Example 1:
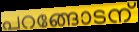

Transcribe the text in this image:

പറങ്ങോടന്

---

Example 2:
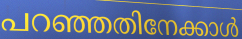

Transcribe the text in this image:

പറഞ്ഞതിനേക്കാൾ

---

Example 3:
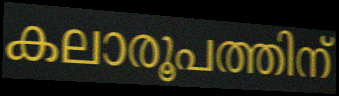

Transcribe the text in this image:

കലാരൂപത്തിന്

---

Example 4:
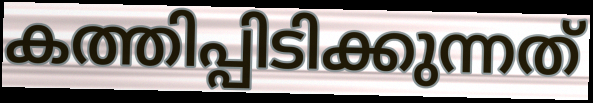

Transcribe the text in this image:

കത്തിപ്പിടിക്കുന്നത്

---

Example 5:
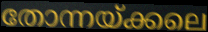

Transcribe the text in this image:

തോന്നയ്ക്കലെ